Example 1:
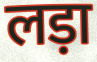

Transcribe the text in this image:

लड़ा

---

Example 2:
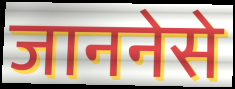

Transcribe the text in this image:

जाननेसे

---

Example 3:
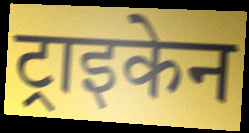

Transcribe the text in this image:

ट्राइकेन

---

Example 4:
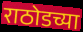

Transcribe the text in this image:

राठोडच्या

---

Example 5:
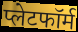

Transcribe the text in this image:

प्‍लेटफॉर्म